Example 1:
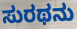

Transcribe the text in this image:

ಸುರಥನು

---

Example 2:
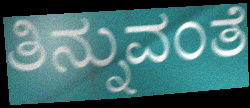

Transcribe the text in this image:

ತಿನ್ನುವಂತೆ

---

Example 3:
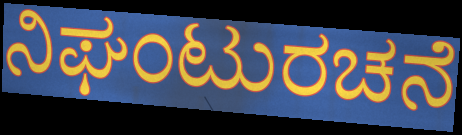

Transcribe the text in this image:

ನಿಘಂಟುರಚನೆ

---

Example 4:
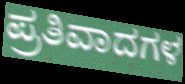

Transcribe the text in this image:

ಪ್ರತಿವಾದಗಳ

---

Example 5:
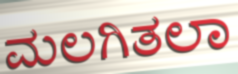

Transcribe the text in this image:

ಮಲಗಿತಲಾ